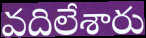
వదిలేశారు